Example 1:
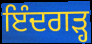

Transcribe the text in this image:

ਇੰਦਗੜ੍ਹ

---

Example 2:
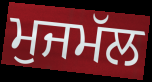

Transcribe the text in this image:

ਮੁਜਮੱਲ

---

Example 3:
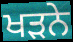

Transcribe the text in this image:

ਖੜਨੇ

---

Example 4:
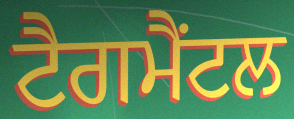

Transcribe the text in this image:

ਟੈਗਮੈਂਟਲ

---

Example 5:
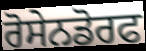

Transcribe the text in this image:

ਰੋਸੇਨਡੋਰਫ